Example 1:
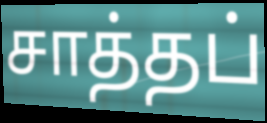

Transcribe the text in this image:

சாத்தப்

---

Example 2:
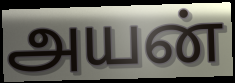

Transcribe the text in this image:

அயன்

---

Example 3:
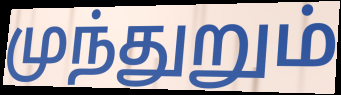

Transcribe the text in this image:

முந்துறும்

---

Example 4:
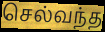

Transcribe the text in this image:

செல்வந்த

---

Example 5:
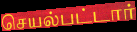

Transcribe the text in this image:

செயல்பட்டார்